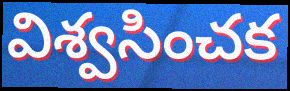
విశ్వసించక